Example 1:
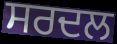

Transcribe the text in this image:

ਸਰਦਲ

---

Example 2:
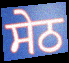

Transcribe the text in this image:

ਸੇਠ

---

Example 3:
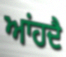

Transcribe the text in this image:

ਆਂਹਦੈ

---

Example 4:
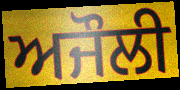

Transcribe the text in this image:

ਅਜੌਲੀ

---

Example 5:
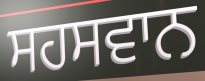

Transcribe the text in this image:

ਸਹਸਵਾਨ